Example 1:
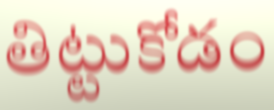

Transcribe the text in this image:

తిట్టుకోడం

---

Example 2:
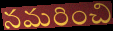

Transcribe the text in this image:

నమరించి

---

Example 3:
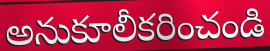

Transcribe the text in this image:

అనుకూలీకరించండి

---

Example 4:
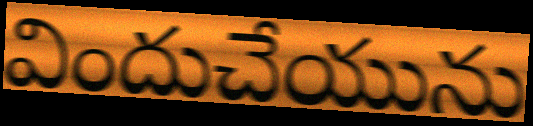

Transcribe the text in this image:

విందుచేయును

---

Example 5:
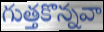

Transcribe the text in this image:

గుత్తకొన్నవా